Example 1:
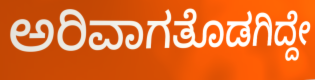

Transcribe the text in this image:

ಅರಿವಾಗತೊಡಗಿದ್ದೇ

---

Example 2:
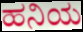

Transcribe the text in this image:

ಹನಿಯ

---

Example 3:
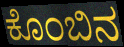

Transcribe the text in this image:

ಕೊಂಬಿನ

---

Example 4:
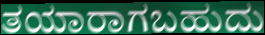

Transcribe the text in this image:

ತಯಾರಾಗಬಹುದು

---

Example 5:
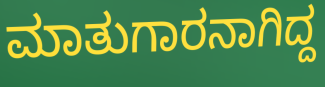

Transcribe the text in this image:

ಮಾತುಗಾರನಾಗಿದ್ದ